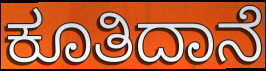
ಕೂತಿದಾನೆ